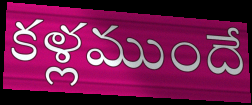
కళ్లముందే